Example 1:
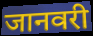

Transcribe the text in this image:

जानवरी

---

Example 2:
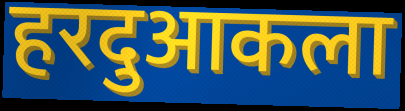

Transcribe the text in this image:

हरदुआकला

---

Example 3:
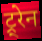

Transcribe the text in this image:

ट्र्रेन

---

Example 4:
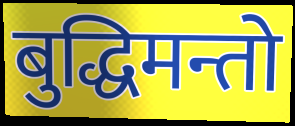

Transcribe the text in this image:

बुद्धिमन्तो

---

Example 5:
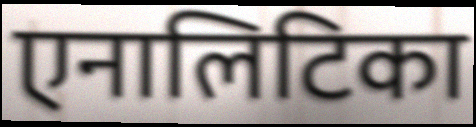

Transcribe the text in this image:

एनालिटिका